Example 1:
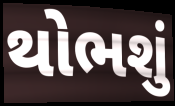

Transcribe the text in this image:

થોભશું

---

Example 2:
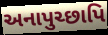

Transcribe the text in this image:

અનાપુચ્છાપિ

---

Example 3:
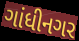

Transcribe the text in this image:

ગાંધીનગર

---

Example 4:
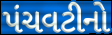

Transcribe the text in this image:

પંચવટીનો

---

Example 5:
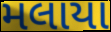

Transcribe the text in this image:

મલાયા